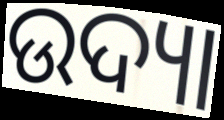
ଉଦ୍ୟା